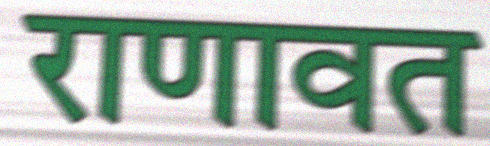
राणावत